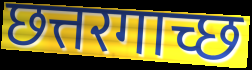
छत्तरगाच्छ